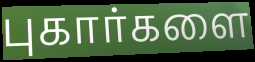
புகார்களை